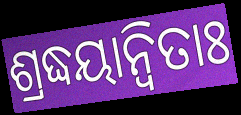
ଶ୍ରଦ୍ଧୟାନ୍ୱିତାଃ